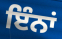
ਇੰਨਾਂ